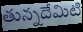
తున్నదేమిటి